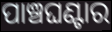
ପାଞ୍ଚଘଣ୍ଟାର